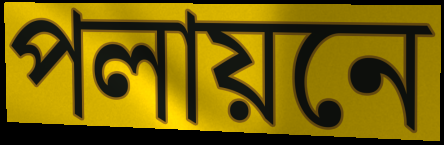
পলায়নে